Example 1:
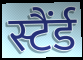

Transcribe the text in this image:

स्टैंर्ड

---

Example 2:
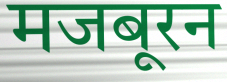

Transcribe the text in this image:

मजबूरन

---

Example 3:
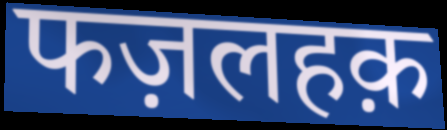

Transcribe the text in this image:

फज़लहक़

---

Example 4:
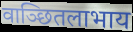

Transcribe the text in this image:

वाञ्छितलाभाय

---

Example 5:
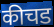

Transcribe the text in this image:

कीचड